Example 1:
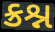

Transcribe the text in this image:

ક્રશ્ન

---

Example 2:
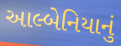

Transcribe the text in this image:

આલ્બેનિયાનું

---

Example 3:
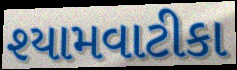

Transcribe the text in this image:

શ્યામવાટીકા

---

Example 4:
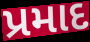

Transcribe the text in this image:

પ્રમાદ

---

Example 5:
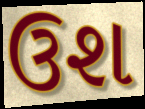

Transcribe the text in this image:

ઉશ